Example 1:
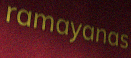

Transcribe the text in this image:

ramayanas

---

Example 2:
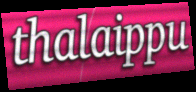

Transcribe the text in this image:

thalaippu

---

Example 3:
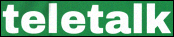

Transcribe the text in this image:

teletalk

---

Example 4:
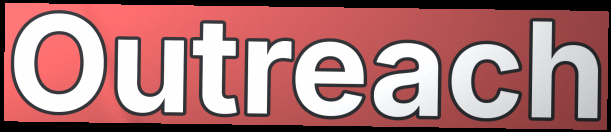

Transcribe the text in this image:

Outreach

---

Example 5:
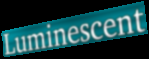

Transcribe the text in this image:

Luminescent